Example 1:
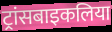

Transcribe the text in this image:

ट्रांसबाइकलिया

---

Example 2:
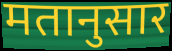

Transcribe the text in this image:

मतानुसार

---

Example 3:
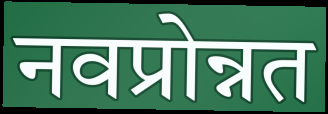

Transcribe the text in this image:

नवप्रोन्नत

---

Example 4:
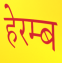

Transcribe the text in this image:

हेरम्ब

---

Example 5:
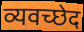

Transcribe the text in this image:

व्यवच्छेद